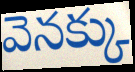
వెనక్కు